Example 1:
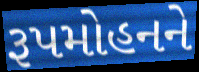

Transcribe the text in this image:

રૂપમોહનને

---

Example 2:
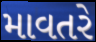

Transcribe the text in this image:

માવતરે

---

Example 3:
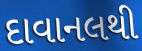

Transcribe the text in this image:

દાવાનલથી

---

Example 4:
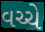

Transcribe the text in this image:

વચ્ચે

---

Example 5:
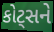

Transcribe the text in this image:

કોટ્સને